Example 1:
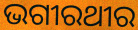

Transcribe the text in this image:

ଭଗୀରଥୀର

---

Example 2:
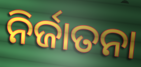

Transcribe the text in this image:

ନିର୍ଜାତନା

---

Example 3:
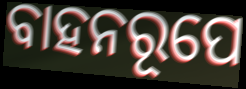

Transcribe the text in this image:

ବାହନରୂପେ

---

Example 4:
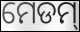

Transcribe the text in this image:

ମେଡମ୍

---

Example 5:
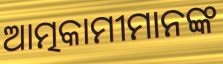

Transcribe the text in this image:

ଆତ୍ମକାମୀମାନଙ୍କ